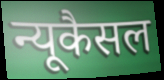
न्यूकैसल